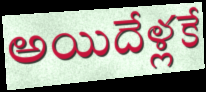
అయిదేళ్లకే